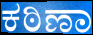
ಕಠಿಣಾ